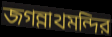
জগন্নাথমন্দির